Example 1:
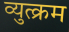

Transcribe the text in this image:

व्युत्क्रम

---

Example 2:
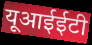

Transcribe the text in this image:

यूआईईटी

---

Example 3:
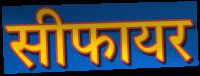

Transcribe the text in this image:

सीफायर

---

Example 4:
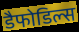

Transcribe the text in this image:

डैफोडिल्स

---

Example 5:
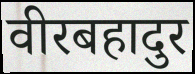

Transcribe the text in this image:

वीरबहादुर